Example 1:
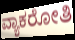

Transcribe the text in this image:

ವ್ಯಾಕರೋತಿ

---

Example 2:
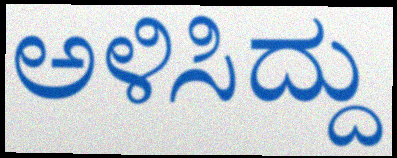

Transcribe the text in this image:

ಅಳಿಸಿದ್ದು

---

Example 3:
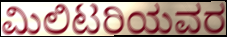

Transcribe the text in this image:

ಮಿಲಿಟರಿಯವರ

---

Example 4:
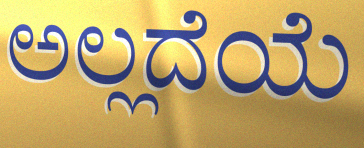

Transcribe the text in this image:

ಅಲ್ಲದೆಯೆ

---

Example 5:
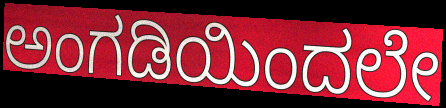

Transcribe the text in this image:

ಅಂಗಡಿಯಿಂದಲೇ